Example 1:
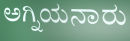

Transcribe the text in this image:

ಅಗ್ನಿಯನಾರು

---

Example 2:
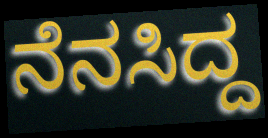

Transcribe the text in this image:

ನೆನಸಿದ್ದ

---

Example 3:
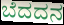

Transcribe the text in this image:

ಬೆದದನ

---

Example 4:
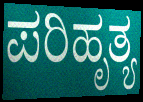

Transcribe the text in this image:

ಪರಿಹೃತ್ಯ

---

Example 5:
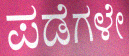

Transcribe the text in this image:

ಪಡೆಗಳೇ